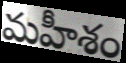
మహీశం